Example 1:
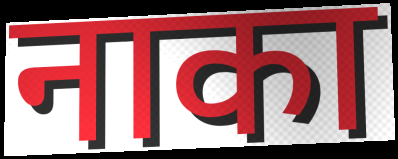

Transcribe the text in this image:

नाका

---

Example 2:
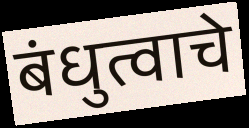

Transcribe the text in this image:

बंधुत्वाचे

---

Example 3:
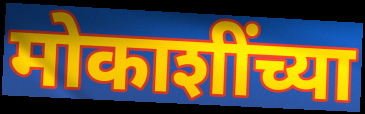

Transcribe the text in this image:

मोकाशींच्या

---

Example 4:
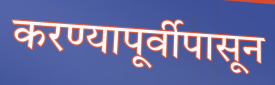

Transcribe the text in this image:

करण्यापूर्वीपासून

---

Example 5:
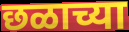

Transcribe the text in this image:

छळाच्या